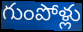
గుంపోళ్లు